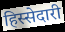
हिस्‍सेदारी